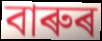
বাৰুৰ